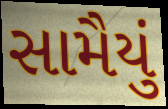
સામૈયું